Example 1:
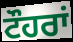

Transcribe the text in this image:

ਟੌਹਰਾਂ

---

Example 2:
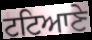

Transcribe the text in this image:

ਟਟਿਆਣੇ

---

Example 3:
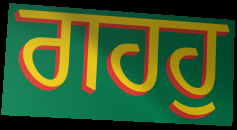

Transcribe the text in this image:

ਗਹਹੁ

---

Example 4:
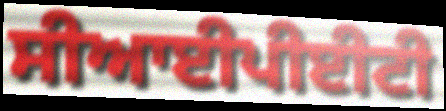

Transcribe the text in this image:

ਸੀਆਈਪੀਈਟੀ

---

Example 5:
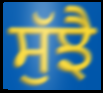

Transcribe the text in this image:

ਸੁੱਝੈ